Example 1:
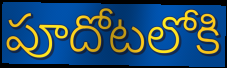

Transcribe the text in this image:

పూదోటలోకి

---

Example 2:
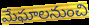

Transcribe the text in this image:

మేఘాలనుంచి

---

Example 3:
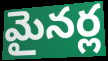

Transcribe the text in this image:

మైనర్ల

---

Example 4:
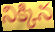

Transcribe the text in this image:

నిక్కిన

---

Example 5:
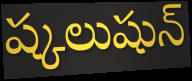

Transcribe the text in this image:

ష్కలుషున్